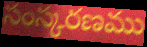
సంస్కరణము